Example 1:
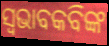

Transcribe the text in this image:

ସ୍ଵଭାବକବିଙ୍କ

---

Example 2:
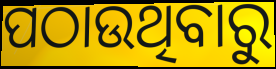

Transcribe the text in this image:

ପଠାଉଥିବାରୁ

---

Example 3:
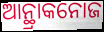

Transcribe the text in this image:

ଆନ୍ଥ୍ରାକନୋଜ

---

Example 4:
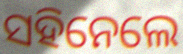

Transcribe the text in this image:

ସହିନେଲେ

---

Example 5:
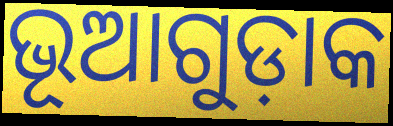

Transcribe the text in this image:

ଭୂଆଗୁଡ଼ାକ